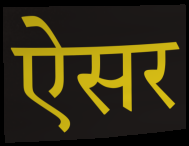
ऐसर